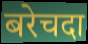
बरेचदा